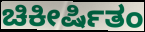
ಚಿಕೀರ್ಷಿತಂ